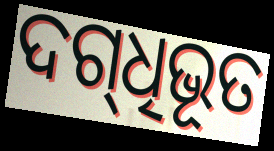
ଦଗ୍‌ଧିଭୂତ